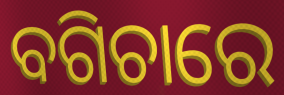
ବଗିଚାରେ